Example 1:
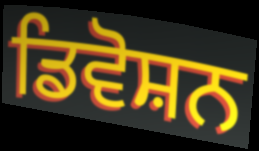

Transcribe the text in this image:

ਡਿਵੋਸ਼ਨ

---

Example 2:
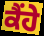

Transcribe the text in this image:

ਕੈਂਹੇ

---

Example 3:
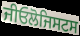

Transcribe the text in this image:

ਜੀਓਲੋਜਿਸਟਸ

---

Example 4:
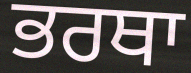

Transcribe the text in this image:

ਭਰਥਾ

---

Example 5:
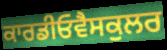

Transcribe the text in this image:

ਕਾਰਡੀਓਵੈਸਕੁਲਰ